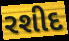
રશીદ